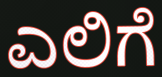
ಎಲಿಗೆ